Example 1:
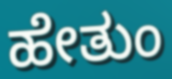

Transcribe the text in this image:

ಹೇತುಂ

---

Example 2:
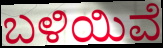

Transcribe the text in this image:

ಬಳಿಯಿವೆ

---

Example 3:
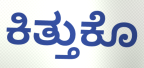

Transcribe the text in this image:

ಕಿತ್ತುಕೊ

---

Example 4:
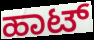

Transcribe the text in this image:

ಹಾಟ್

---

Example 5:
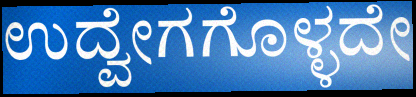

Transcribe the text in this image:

ಉದ್ವೇಗಗೊಳ್ಳದೇ